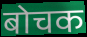
बोचक